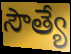
సౌత్యే